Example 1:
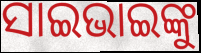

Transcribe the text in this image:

ସାଇଭାଇଙ୍କୁ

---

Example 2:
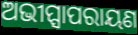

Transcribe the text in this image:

ଅଭୀପ୍ସାପରାୟଣ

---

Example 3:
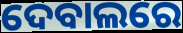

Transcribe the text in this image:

ଦେବାଲରେ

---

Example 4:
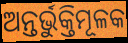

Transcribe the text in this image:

ଅନ୍ତର୍ଭୁକ୍ତିମୂଳକ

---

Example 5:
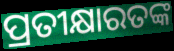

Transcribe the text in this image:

ପ୍ରତୀକ୍ଷାରତଙ୍କ